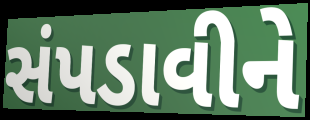
સંપડાવીને